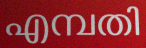
എമ്പതി